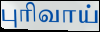
புரிவாய்